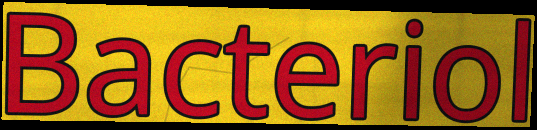
Bacteriol